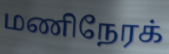
மணிநேரக்